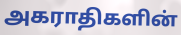
அகராதிகளின்